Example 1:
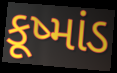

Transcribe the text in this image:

કૂષ્માંડ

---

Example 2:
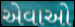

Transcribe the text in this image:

એવાઓ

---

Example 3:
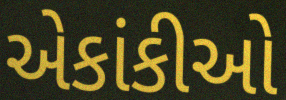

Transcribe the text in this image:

એકાંકીઓ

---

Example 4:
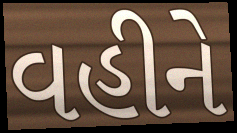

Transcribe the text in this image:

વહીને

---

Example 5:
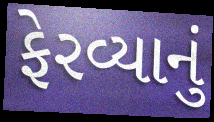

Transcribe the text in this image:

ફેરવ્યાનું